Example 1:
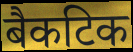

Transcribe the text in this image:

बैकटिक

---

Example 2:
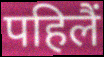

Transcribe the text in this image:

पहिलैं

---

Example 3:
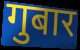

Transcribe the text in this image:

गुबार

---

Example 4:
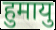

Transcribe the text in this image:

हुमायु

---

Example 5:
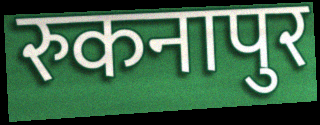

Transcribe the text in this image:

रुकनापुर